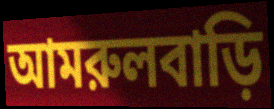
আমরুলবাড়ি